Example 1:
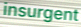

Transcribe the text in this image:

insurgent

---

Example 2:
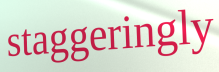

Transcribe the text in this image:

staggeringly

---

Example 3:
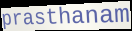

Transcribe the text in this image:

prasthanam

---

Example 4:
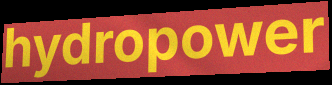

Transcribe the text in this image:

hydropower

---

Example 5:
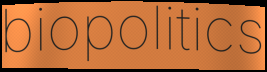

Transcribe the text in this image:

biopolitics